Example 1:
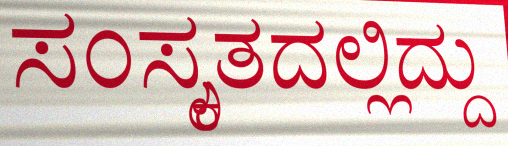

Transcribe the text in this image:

ಸಂಸ್ಕೃತದಲ್ಲಿದ್ದು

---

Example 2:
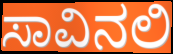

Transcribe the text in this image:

ಸಾವಿನಲಿ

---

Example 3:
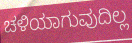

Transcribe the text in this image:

ಚಳಿಯಾಗುವುದಿಲ್ಲ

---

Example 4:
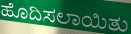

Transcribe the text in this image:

ಹೊದಿಸಲಾಯಿತು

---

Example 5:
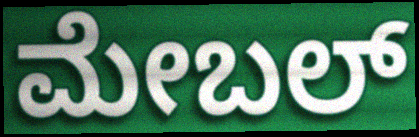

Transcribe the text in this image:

ಮೇಬಲ್